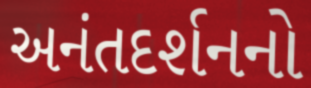
અનંતદર્શનનો